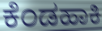
ಕೆಂಡಹಾಕಿ